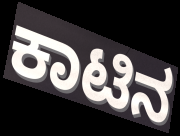
ಕಾಟಿನ